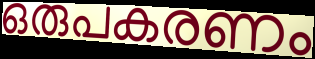
ഒരുപകരണം